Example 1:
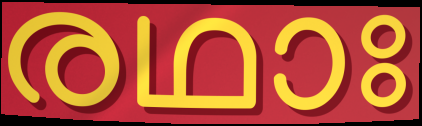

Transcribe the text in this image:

രഥാഃ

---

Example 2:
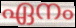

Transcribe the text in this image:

ഏനം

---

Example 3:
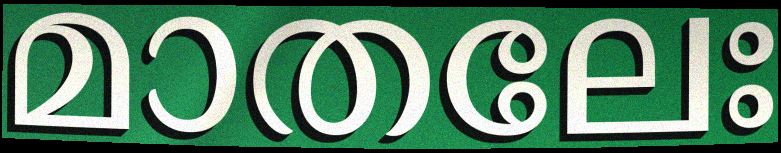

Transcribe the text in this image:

മാതലേഃ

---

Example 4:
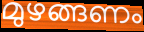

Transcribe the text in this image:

മുഴങ്ങണം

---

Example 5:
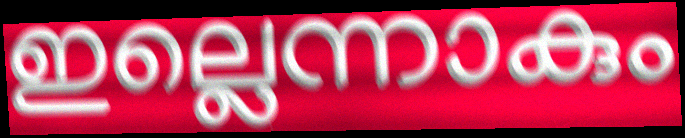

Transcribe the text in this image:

ഇല്ലെന്നാകും